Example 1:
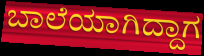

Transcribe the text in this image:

ಬಾಲೆಯಾಗಿದ್ದಾಗ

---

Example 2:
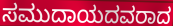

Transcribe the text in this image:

ಸಮುದಾಯದವರಾದ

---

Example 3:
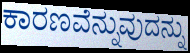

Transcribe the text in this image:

ಕಾರಣವೆನ್ನುವುದನ್ನು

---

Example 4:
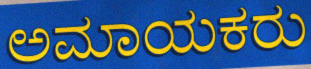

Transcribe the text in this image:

ಅಮಾಯಕರು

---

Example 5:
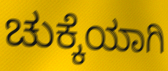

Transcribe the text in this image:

ಚುಕ್ಕೆಯಾಗಿ